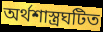
অর্থশাস্ত্রঘটিত